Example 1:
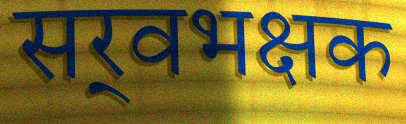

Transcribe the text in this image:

सर्वभक्षक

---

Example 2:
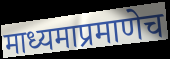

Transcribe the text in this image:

माध्यमाप्रमाणेच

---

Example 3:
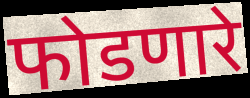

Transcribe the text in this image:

फोडणारे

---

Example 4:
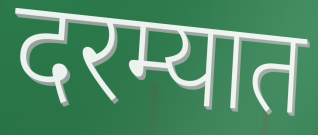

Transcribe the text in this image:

दरम्यात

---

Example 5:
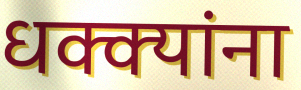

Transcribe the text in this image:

धक्क्यांना